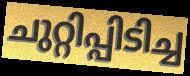
ചുറ്റിപ്പിടിച്ച